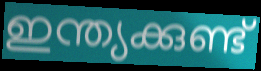
ഇന്ത്യക്കുണ്ട്